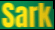
Sark